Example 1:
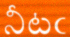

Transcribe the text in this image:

నీటఁ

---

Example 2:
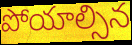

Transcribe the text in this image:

పోయాల్సిన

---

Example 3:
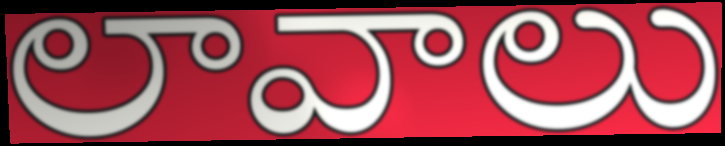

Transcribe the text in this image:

లావాలు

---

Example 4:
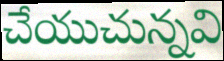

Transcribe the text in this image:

చేయుచున్నవి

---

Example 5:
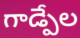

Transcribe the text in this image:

గాడ్పేల